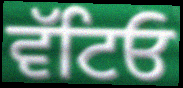
ਵੱਟਿਓ